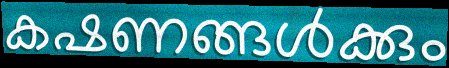
കഷണങ്ങൾക്കും